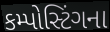
કમ્પોસ્ટિંગના